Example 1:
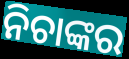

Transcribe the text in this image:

ନିଚାଙ୍କର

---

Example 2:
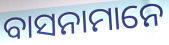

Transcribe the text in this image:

ବାସନାମାନେ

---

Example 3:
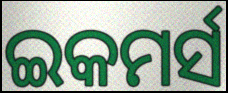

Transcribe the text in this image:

ଇକମର୍ସ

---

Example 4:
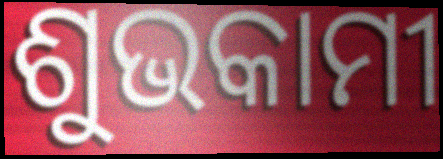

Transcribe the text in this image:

ଶୁଭକାମୀ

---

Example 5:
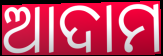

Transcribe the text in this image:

ଆଦାମ